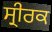
ਸ੍ਰੀਰਕ